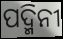
ପଦ୍ମିନୀ